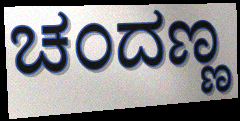
ಚಂದಣ್ಣ